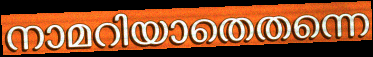
നാമറിയാതെതന്നെ